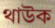
থাউক